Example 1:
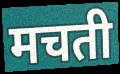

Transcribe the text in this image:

मचती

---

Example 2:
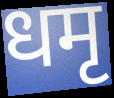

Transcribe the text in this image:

धमृ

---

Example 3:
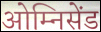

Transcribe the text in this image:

ओम्निसेंड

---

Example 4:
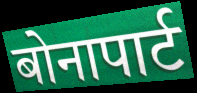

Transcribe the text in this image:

बोनापार्ट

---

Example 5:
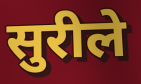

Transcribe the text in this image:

सुरीले